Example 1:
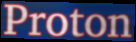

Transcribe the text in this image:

Proton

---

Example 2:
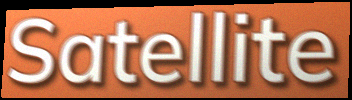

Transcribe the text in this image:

Satellite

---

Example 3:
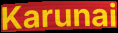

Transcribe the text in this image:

Karunai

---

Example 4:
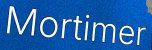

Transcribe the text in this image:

Mortimer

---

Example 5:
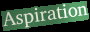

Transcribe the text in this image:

Aspiration